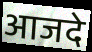
आजदे